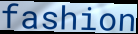
fashion